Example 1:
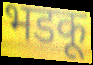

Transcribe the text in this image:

भडकू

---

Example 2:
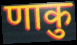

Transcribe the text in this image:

णाकु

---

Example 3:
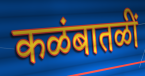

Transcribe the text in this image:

कळंबातळीं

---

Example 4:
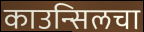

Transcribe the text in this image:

काउन्सिलचा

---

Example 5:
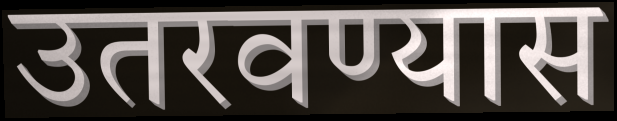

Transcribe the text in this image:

उतरवण्यास